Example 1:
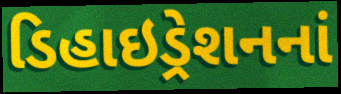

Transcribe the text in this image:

ડિહાઇડ્રેશનનાં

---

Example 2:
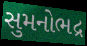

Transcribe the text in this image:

સુમનોભદ્ર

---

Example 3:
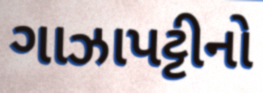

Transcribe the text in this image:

ગાઝાપટ્ટીનો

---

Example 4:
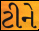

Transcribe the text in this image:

ટીને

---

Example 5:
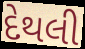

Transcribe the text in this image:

દેથલી